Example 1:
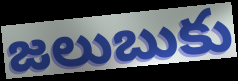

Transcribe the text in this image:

జలుబుకు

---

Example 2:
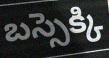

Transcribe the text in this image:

బస్సెక్కి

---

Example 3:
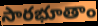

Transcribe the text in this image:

సారభూతాం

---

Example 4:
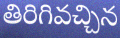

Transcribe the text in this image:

తిరిగివచ్చిన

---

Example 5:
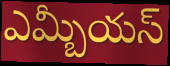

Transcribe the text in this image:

ఎమ్బీయస్